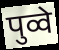
पुव्वे